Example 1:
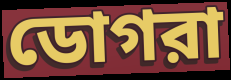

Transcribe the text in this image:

ডোগরা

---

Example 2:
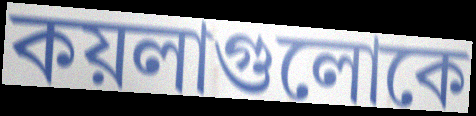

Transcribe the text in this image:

কয়লাগুলোকে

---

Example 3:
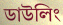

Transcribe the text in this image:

ডাউলিং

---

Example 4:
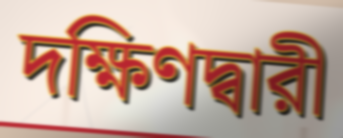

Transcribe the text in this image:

দক্ষিণদ্বারী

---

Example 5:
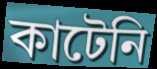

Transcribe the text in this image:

কাটেনি